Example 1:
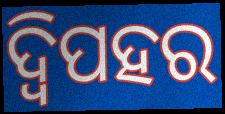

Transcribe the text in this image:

ଦ୍ୱିପହର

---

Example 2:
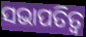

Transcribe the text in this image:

ସଭାପତିତ୍ଵ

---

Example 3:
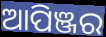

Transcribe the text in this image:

ଆପିଞ୍ଜର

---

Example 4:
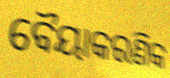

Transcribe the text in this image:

ବୈୟାକରଣିକ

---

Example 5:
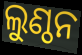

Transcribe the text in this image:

ଲୁଣ୍ଠନ